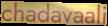
chadavaali